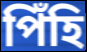
পিঁহি